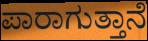
ಪಾರಾಗುತ್ತಾನೆ